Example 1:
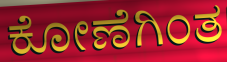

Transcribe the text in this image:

ಕೋಣೆಗಿಂತ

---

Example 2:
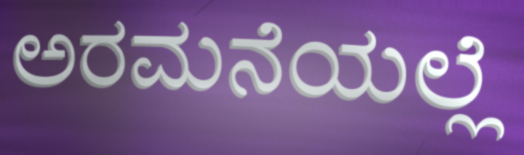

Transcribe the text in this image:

ಅರಮನೆಯಲ್ಲೆ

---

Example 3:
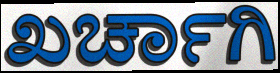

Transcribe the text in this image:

ಖರ್ಚಾಗಿ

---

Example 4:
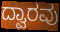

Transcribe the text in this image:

ದ್ವಾರವು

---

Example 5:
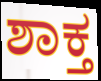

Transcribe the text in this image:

ಶಾಕ್ತ